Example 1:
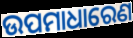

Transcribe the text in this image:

ଉପମାଧାରେଣ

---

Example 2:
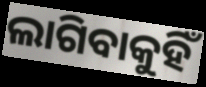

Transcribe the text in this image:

ଲାଗିବାକୁହିଁ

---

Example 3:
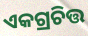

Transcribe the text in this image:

ଏକଗ୍ରଚିତ୍ତ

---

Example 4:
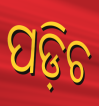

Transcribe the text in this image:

ପଡ଼ିଚ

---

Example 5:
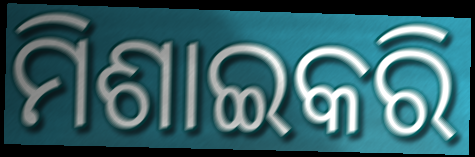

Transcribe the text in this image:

ମିଶାଇକରି